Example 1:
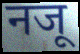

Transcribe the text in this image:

नजू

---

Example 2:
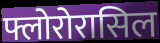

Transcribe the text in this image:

फ्लोरोरासिल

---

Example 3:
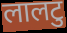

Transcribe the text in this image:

लालटु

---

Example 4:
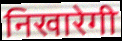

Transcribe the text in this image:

निखारेगी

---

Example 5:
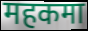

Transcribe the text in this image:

महकमा